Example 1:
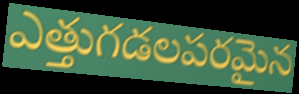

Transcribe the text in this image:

ఎత్తుగడలపరమైన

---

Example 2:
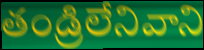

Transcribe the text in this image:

తండ్రిలేనివాని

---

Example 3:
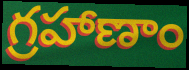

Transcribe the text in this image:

గ్రహాణాం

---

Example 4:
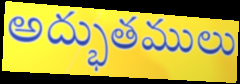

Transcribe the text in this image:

అద్భుతములు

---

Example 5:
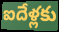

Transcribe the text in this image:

ఐదేళ్లకు